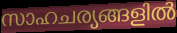
സാഹചര്യങ്ങളിൽ